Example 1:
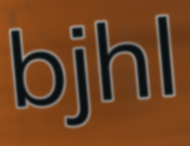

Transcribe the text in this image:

bjhl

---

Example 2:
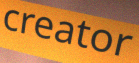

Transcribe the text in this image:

creator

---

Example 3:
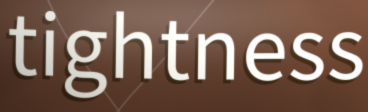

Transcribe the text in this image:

tightness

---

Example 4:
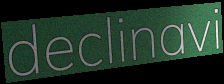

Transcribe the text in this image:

declinavi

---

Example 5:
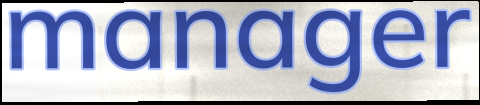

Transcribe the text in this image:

manager